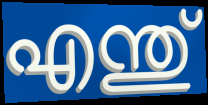
എന്തു്